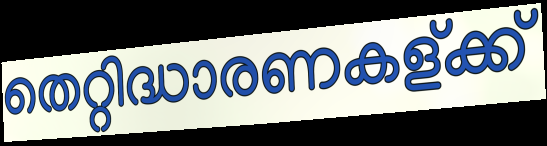
തെറ്റിദ്ധാരണകള്ക്ക്